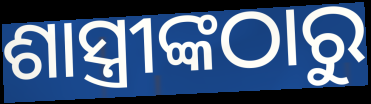
ଶାସ୍ତ୍ରୀଙ୍କଠାରୁ